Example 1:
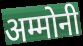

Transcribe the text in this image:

अम्मोनी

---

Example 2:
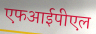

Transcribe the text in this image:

एफआईपीएल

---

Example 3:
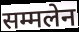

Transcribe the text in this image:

सम्मलेन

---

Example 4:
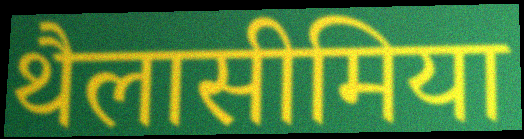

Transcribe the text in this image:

थैलासीमिया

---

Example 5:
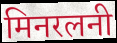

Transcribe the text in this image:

मिनरलनी